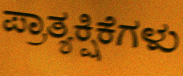
ಪ್ರಾತ್ಯಕ್ಷಿಕೆಗಳು